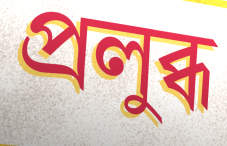
প্রলুব্ধ